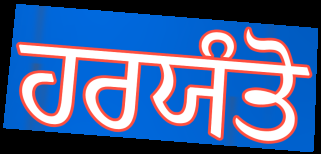
ਹਰਯੰਤੋ